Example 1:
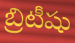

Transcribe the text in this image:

బ్రిటీషు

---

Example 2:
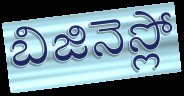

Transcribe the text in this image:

బిజినెస్లో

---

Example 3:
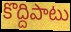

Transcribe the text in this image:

కొద్దిపాటు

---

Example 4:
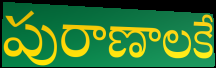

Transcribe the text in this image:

పురాణాలకే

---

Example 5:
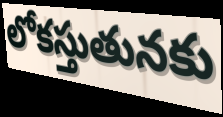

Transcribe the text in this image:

లోకస్తుతునకు